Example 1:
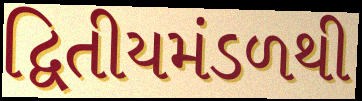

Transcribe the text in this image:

દ્વિતીયમંડળથી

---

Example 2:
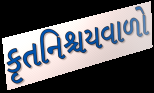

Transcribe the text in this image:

કૃતનિશ્ચયવાળો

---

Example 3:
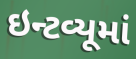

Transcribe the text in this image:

ઇન્ટવ્યૂમાં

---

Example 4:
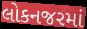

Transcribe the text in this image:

લોકનજરમાં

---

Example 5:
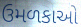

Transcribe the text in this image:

ઉમળકાઓ